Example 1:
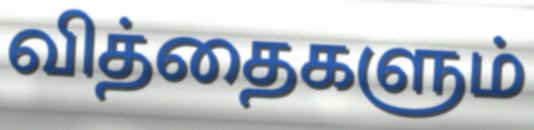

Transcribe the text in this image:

வித்தைகளும்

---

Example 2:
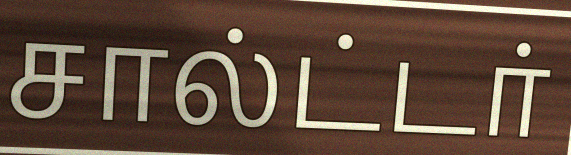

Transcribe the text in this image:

சால்ட்டர்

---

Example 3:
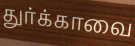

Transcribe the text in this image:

துர்க்காவை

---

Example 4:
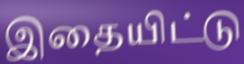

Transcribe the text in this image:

இதையிட்டு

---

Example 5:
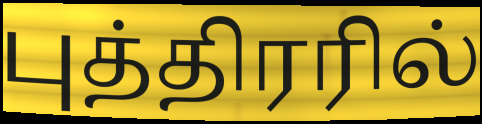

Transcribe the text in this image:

புத்திரரில்